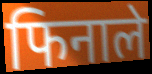
फिनाले